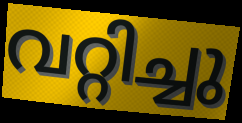
വറ്റിച്ചു